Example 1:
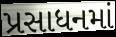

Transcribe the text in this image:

પ્રસાધનમાં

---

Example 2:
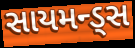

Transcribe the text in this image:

સાયમન્ડ્સ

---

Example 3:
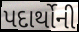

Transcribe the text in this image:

પદાર્થોની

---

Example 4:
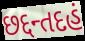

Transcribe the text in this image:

છદ્દન્તદહં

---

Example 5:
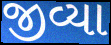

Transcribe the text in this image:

જીવ્યા